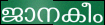
ജാനകീം